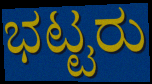
ಭಟ್ಟರು